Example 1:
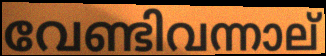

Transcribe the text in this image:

വേണ്ടിവന്നാല്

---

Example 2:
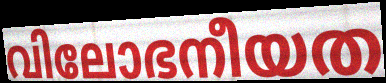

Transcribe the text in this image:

വിലോഭനീയത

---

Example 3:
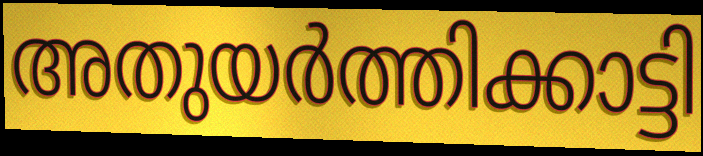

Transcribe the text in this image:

അതുയർത്തിക്കാട്ടി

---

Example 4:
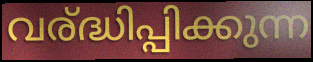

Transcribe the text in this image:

വര്ദ്ധിപ്പിക്കുന്ന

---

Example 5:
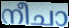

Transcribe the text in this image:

നീചാ